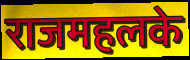
राजमहलके